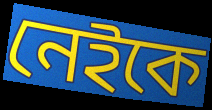
নেইকে